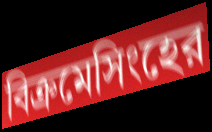
বিক্রমেসিংহের